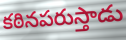
కఠినపరుస్తాడు